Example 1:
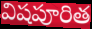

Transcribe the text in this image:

విషపూరిత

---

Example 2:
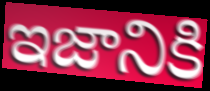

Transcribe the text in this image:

ఇజానికి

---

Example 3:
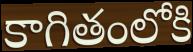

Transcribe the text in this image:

కాగితంలోకి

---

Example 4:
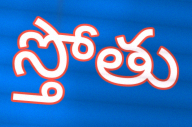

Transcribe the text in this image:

స్తోతు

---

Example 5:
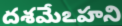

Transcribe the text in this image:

దశమేఽహని